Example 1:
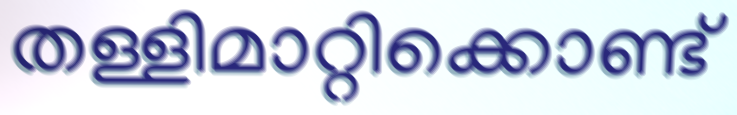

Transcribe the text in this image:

തള്ളിമാറ്റിക്കൊണ്ട്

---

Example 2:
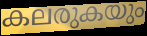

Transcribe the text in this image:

കലരുകയും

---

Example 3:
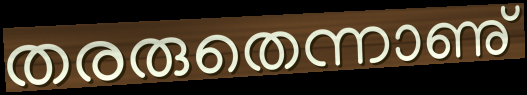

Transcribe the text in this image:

തരരുതെന്നാണു്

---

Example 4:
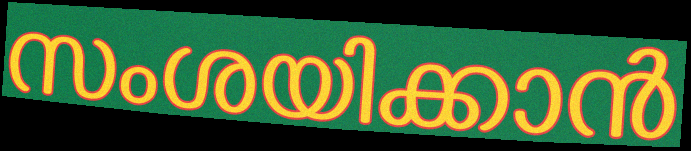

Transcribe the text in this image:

സംശയിക്കാൻ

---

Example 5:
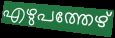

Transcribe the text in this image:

എഴുപത്തേഴ്